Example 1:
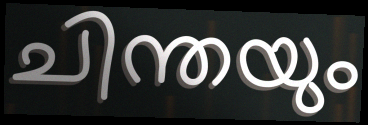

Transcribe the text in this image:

ചിന്തയും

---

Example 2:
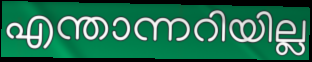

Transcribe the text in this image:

എന്താന്നറിയില്ല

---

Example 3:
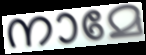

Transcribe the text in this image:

നാമേ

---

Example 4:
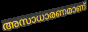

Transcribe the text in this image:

അസാധാരണമാണ്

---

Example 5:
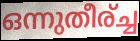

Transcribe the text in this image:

ഒന്നുതീര്ച്ച